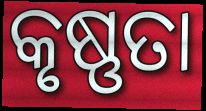
କୃଷ୍ଣତା